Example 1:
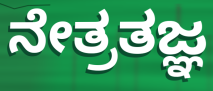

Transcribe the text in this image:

ನೇತ್ರತಜ್ಞ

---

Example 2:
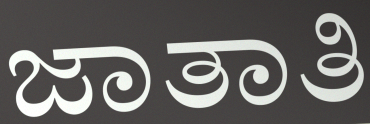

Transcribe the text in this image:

ಜಾತಾತಿ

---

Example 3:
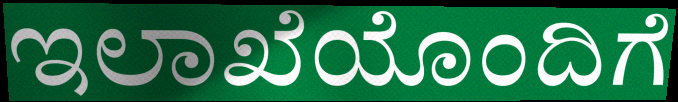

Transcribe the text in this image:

ಇಲಾಖೆಯೊಂದಿಗೆ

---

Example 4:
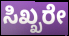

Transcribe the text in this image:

ಸಿಖ್ಖರೇ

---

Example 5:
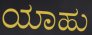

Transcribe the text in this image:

ಯಾಹು